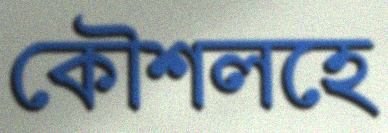
কৌশলহে